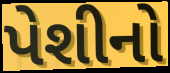
પેશીનો